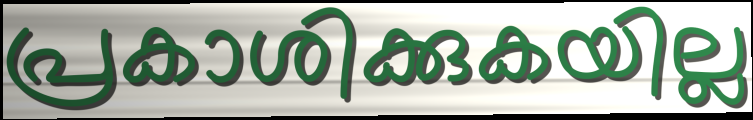
പ്രകാശിക്കുകയില്ല